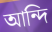
আন্দি